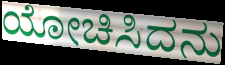
ಯೋಚಿಸಿದನು